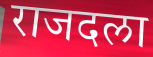
राजदला